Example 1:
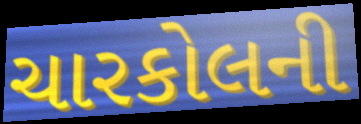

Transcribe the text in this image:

ચારકોલની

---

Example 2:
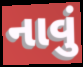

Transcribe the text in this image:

નાવું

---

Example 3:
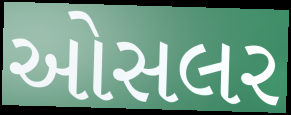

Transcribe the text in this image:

ઓસલર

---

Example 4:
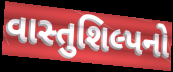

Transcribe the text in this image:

વાસ્તુશિલ્પનો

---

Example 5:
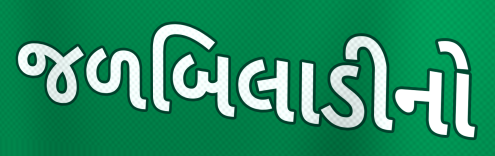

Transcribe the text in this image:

જળબિલાડીનો